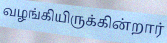
வழங்கியிருக்கின்றார்